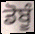
ਡੋਬੂੰ